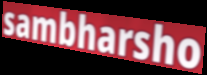
sambharsho